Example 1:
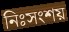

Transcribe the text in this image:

নিঃসংশয়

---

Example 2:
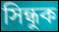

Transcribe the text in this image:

সিন্ধুক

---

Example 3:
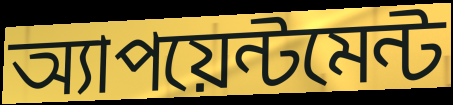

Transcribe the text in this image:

অ্যাপয়েন্টমেন্ট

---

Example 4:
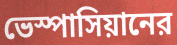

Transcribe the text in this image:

ভেস্পাসিয়ানের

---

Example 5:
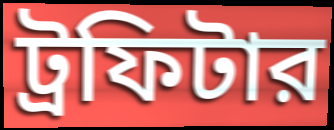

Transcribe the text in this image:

ট্রফিটার